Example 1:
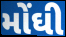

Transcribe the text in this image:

મોંઘી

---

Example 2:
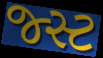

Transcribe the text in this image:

જ્સ્ટ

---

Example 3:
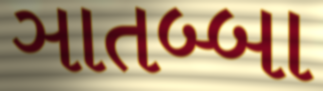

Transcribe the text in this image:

ઞાતબ્બા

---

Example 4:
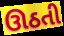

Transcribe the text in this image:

ઊઠતી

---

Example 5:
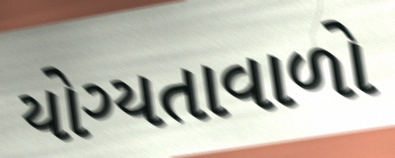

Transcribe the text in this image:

યોગ્યતાવાળો